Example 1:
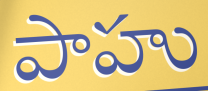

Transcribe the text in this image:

పాహు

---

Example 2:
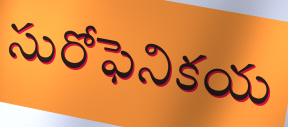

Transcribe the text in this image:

సురోఫెనికయ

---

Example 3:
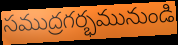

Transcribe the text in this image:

సముద్రగర్భమునుండి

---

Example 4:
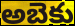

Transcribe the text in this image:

అబెకు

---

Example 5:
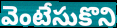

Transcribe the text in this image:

వెంటేసుకొని